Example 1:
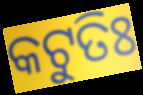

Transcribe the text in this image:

କଟୁତିଃ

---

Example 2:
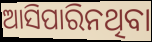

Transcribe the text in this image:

ଆସିପାରିନଥିବା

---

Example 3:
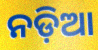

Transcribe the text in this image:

ନଡ଼ିଆ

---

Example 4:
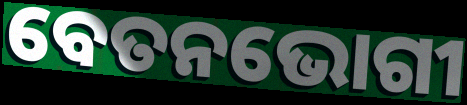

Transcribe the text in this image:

ବେତନଭୋଗୀ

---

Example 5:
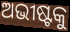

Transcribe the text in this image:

ଅଭୀଷ୍ଟକୁ